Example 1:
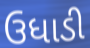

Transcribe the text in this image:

ઉધાડી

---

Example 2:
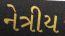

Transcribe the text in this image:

નેત્રીય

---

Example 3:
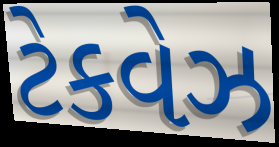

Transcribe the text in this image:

ટેકવેઝ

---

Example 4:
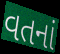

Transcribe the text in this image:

વતનાં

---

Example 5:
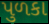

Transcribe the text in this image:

પુળકા